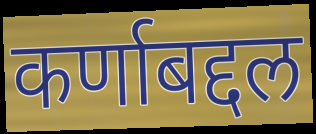
कर्णाबद्दल